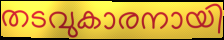
തടവുകാരനായി